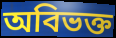
অবিভক্ত